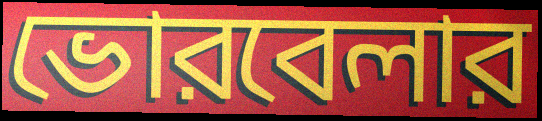
ভোরবেলার